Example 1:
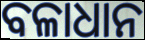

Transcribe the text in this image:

ବଳାଧାନ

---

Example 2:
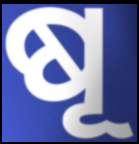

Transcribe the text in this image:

ଷୂ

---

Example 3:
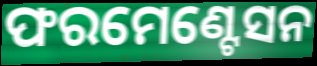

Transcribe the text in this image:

ଫରମେଣ୍ଟେସନ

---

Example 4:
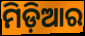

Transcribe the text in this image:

ମିଡ଼ିଆର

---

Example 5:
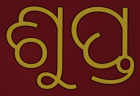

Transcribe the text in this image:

ଶୁପ୍ତ